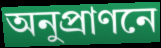
অনুপ্রাণনে